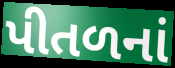
પીતળનાં